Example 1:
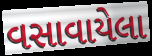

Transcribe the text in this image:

વસાવાયેલા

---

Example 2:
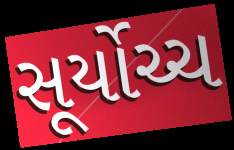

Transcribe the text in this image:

સૂર્યોચ્ચ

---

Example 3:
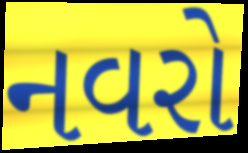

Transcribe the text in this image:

નવરો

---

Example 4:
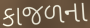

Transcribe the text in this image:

કાજળના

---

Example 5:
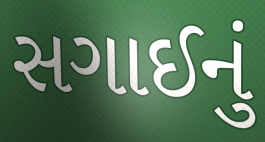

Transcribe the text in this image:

સગાઈનું